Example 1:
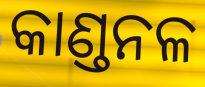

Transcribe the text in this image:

କାଣ୍ଡନଳ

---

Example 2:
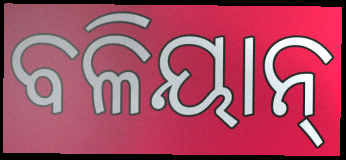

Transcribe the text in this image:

ବଳିୟାନ୍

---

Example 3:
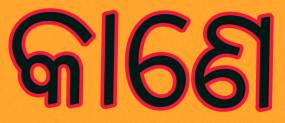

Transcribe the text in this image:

କାଣେ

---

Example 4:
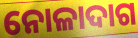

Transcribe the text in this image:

ନୋଳାଦାଗ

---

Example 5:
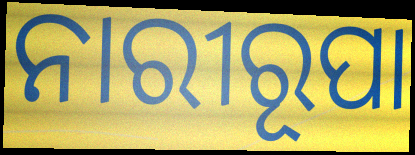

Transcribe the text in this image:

ନାରୀରୂପା